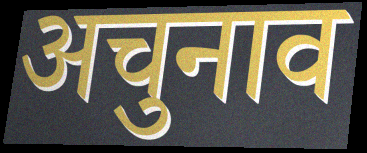
अचुनाव